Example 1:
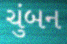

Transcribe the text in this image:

ચુંબન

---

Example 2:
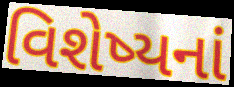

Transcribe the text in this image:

વિશેષ્યનાં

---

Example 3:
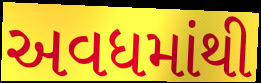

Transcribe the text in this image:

અવધમાંથી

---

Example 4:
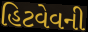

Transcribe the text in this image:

હિટવેવની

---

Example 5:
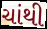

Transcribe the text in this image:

ચાંથી